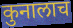
कुनालाच